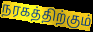
நரகத்திற்கும்